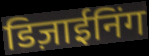
डिज़ाईनिंग